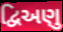
દ્વિઅણુ